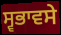
ਸ੍ਵਭਾਵਸੇ